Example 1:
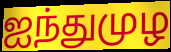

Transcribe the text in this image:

ஐந்துமுழ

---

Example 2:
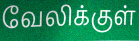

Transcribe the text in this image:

வேலிக்குள்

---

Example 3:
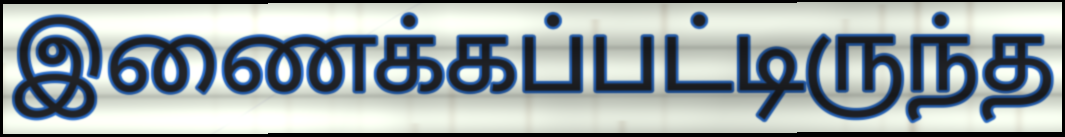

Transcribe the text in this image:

இணைக்கப்பட்டிருந்த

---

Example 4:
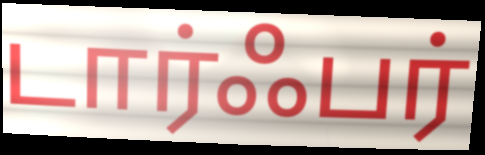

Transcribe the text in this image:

டார்ஃபர்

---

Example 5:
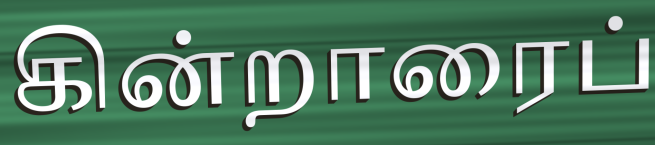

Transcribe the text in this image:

கின்றாரைப்